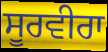
ਸੂਰਵੀਰਾ